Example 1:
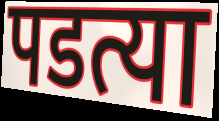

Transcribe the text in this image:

पडत्या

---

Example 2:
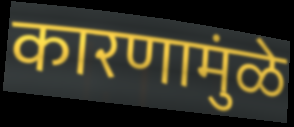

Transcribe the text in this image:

कारणामुंळे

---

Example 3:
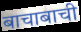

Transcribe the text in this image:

बाचाबाची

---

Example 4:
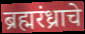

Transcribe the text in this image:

ब्रह्मरंध्राचे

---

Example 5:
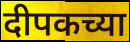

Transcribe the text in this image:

दीपकच्या